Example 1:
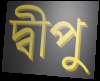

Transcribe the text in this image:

দ্বীপু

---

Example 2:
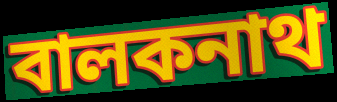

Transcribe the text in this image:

বালকনাথ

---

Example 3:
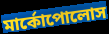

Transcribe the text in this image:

মার্কোপোলোস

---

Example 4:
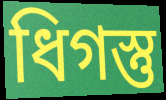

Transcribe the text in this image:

ধিগস্তু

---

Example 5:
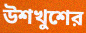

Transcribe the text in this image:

উশখুশের